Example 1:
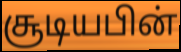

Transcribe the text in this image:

சூடியபின்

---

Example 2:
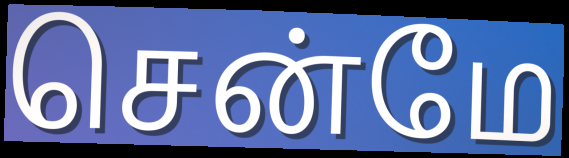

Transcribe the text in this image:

சென்மே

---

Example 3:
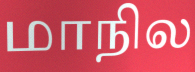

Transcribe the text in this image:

மாநில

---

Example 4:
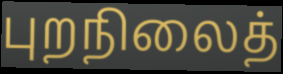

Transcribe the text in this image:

புறநிலைத்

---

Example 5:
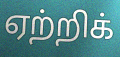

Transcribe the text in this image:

ஏற்றிக்